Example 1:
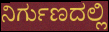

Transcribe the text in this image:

ನಿರ್ಗುಣದಲ್ಲಿ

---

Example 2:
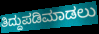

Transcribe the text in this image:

ತಿದ್ದುಪಡಿಮಾಡಲು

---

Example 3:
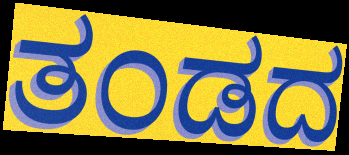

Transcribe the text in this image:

ತಂಡದ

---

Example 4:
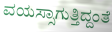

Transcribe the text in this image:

ವಯಸ್ಸಾಗುತ್ತಿದ್ದಂತೆ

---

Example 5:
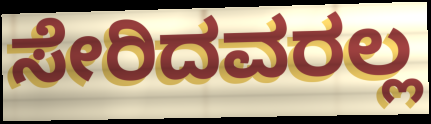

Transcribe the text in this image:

ಸೇರಿದವರಲ್ಲ